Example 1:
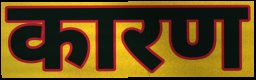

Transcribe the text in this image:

कारण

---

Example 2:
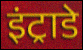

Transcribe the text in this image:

इंट्राडे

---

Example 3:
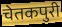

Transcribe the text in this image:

चेतकपुरी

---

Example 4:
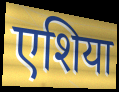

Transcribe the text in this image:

एशिया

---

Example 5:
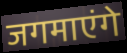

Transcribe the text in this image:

जगमाएंगे